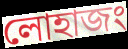
লোহাজং